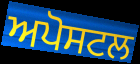
ਅਪੋਸਟਲ